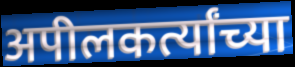
अपीलकर्त्यांच्या